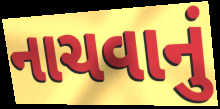
નાચવાનું